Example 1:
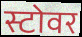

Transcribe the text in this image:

स्टोवर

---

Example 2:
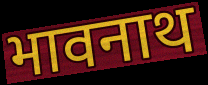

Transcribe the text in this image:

भावनाथ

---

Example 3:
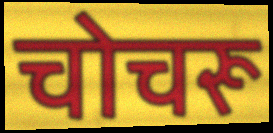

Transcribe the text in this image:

चोचरू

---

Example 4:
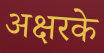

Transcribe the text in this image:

अक्षरके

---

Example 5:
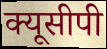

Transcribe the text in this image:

क्यूसीपी